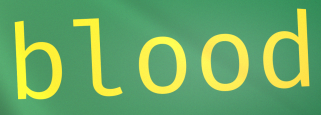
blood